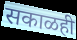
सकाळही